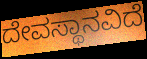
ದೇವಸ್ಥಾನವಿದೆ